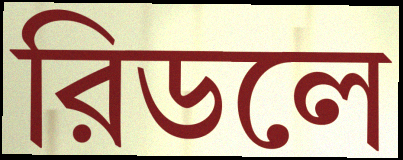
রিডলে